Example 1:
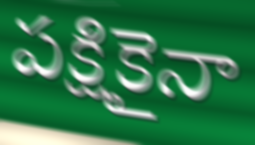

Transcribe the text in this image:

పక్షికైనా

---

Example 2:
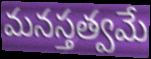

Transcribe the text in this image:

మనస్తత్వమే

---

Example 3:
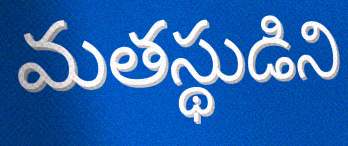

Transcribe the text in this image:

మతస్థుడిని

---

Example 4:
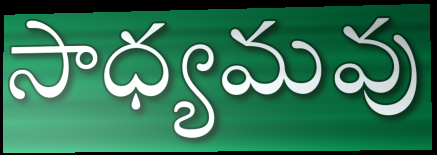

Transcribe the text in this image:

సాధ్యమవు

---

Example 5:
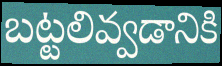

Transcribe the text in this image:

బట్టలివ్వడానికి